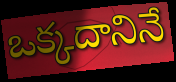
ఒక్కదానినే